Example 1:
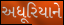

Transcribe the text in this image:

અધૂરિયાને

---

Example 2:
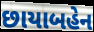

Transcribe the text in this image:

છાયાબહેન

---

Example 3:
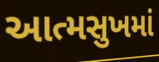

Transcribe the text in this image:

આત્મસુખમાં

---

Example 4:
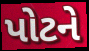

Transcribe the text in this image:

પોટને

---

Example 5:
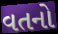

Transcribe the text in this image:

વતનો